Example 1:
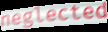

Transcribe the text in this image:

neglected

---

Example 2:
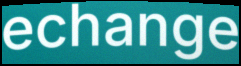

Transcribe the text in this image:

echange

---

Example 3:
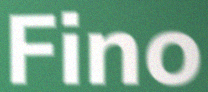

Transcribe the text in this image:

Fino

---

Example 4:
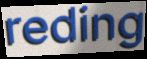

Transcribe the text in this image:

reding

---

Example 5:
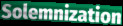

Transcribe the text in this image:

Solemnization